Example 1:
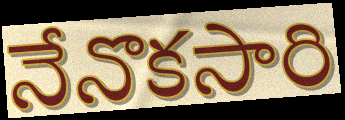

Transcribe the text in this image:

నేనొకసారి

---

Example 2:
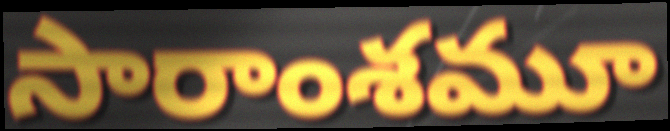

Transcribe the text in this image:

సారాంశమూ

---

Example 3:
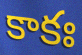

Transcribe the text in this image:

కాకః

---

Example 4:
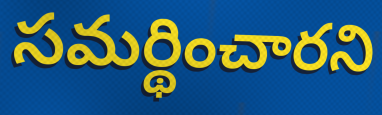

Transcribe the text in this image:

సమర్థించారని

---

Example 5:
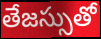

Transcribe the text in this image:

తేజస్సుతో